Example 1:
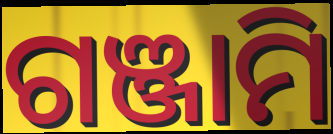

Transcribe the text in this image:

ଗଞ୍ଜାମି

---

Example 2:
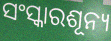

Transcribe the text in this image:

ସଂସ୍କାରଶୂନ୍ୟ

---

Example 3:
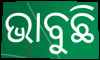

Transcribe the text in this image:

ଭାବୁଛି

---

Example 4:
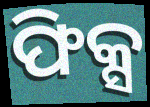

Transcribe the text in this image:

ଫିକ୍ସ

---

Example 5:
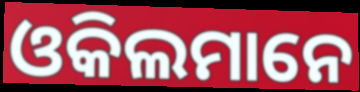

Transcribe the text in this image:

ଓକିଲମାନେ